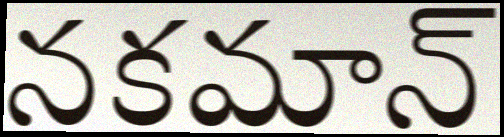
నకమాన్